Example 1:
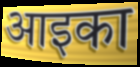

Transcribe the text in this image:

आइका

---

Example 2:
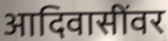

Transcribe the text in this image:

आदिवासींवर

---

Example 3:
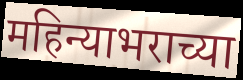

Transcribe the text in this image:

महिन्याभराच्या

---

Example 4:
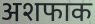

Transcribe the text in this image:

अशफाक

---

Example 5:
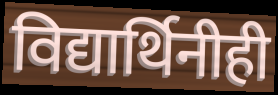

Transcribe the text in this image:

विद्यार्थिनीही